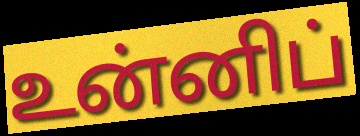
உன்னிப்